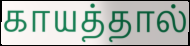
காயத்தால்